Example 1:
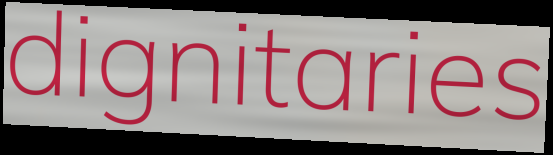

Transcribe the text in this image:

dignitaries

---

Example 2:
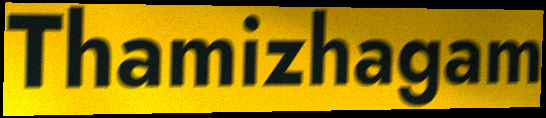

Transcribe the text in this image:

Thamizhagam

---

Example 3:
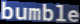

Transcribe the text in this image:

bumble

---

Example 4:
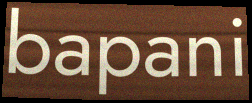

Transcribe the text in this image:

bapani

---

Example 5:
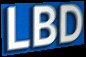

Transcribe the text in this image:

LBD